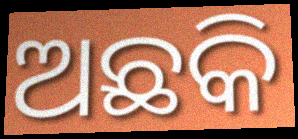
ଅଛକି